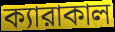
ক্যারাকাল